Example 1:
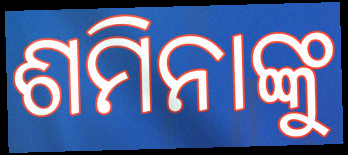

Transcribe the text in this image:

ଶମିନାଙ୍କୁ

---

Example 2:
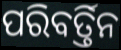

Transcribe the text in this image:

ପରିବର୍ତ୍ତିନ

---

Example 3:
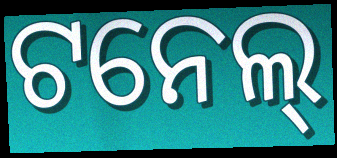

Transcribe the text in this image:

ଟନେଲ୍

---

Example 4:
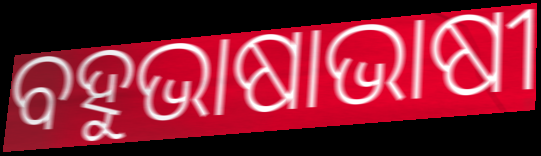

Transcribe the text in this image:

ବହୁଭାଷାଭାଷୀ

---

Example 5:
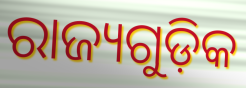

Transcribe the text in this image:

ରାଜ୍ୟଗୁଡ଼ିକ